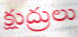
క్షుద్రులు